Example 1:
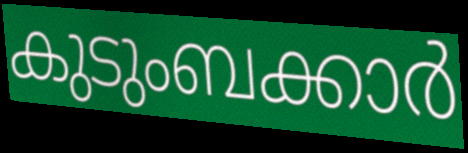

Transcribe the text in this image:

കുടുംബക്കാർ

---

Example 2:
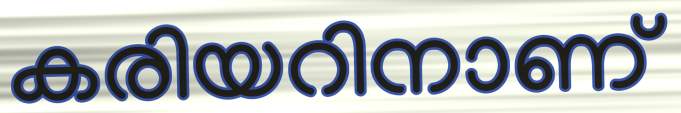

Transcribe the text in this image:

കരിയറിനാണ്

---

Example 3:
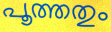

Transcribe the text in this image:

പൂത്തതും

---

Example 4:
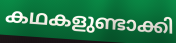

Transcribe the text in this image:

കഥകളുണ്ടാക്കി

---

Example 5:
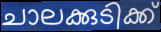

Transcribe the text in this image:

ചാലക്കുടിക്ക്